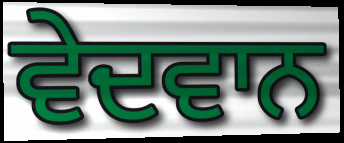
ਵੇਦਵਾਨ